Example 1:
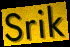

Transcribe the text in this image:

Srik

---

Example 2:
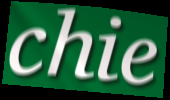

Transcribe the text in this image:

chie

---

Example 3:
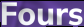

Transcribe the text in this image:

Fours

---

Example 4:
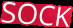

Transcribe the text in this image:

SOCK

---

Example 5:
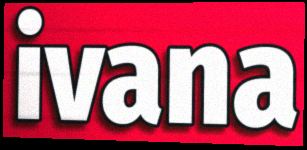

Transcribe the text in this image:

ivana